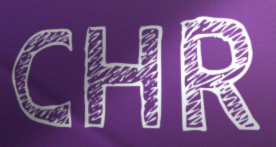
CHR